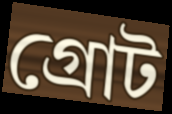
গ্রোট